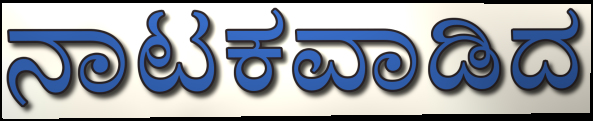
ನಾಟಕವಾಡಿದ